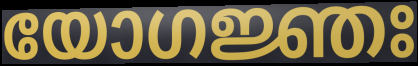
യോഗജ്ഞഃ